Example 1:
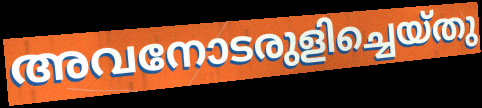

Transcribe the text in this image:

അവനോടരുളിച്ചെയ്തു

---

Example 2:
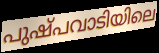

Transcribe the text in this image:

പുഷ്പവാടിയിലെ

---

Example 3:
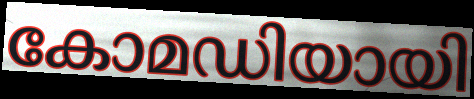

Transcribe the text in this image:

കോമഡിയായി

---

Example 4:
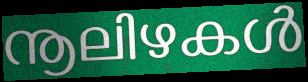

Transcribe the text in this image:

നൂലിഴകൾ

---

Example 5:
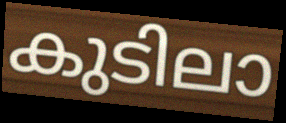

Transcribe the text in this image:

കുടിലാ